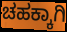
ಚಹಕ್ಕಾಗಿ